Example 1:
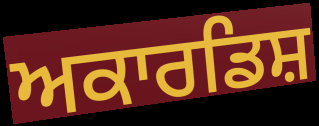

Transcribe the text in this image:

ਅਕਾਰਡਿਸ਼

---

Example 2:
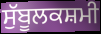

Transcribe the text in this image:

ਸੁੱਬੂਲਕਸ਼ਮੀ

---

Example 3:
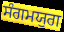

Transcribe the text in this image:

ਸੰਗਮਯੁਗ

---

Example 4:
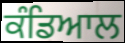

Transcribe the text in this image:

ਕੰਡਿਆਲ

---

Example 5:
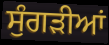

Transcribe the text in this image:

ਸੁੰਗੜੀਆਂ